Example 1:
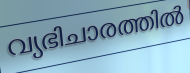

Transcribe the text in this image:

വ്യഭിചാരത്തിൽ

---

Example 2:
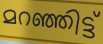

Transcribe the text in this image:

മറഞ്ഞിട്ട്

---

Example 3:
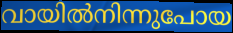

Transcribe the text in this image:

വായിൽനിന്നുപോയ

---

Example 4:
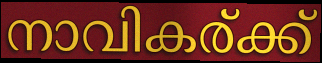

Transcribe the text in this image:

നാവികര്ക്ക്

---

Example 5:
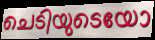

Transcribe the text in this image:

ചെടിയുടെയോ